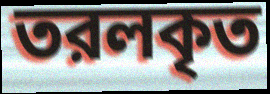
তরলকৃত